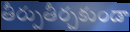
తీర్పుతీర్చకుండా